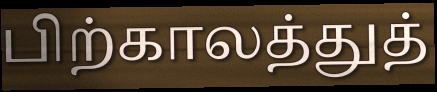
பிற்காலத்துத்